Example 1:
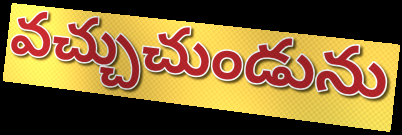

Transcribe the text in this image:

వచ్చుచుండును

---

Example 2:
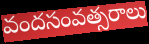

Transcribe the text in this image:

వందసంవత్సరాలు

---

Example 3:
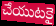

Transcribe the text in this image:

చేయుటకై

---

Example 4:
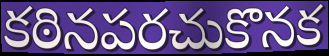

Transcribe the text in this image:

కఠినపరచుకొనక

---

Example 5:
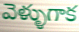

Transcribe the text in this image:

వెళ్ళుగాక